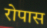
रोपास